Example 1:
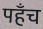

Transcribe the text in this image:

पहँच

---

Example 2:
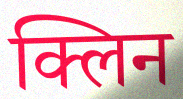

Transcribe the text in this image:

क्लिन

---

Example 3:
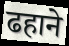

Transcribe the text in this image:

ढहाने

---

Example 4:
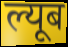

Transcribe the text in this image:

ल्यूब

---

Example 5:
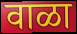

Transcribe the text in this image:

वाळा